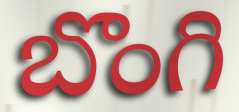
బొంగి